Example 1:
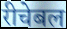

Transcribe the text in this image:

रीचेबल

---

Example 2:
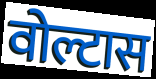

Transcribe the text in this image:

वोल्टास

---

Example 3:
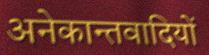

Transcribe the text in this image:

अनेकान्तवादियों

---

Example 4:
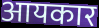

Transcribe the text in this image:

आयकार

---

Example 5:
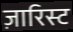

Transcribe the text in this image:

ज़ारिस्ट